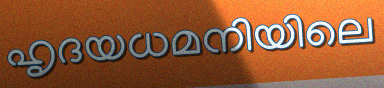
ഹൃദയധമനിയിലെ